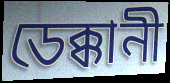
ডেক্কানী